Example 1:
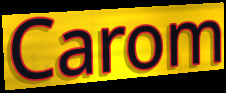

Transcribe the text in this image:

Carom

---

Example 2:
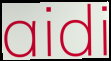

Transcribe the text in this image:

aidi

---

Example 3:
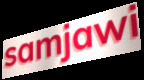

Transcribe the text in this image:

samjawi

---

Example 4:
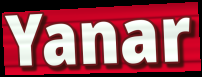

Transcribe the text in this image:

Yanar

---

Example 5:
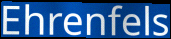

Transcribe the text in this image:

Ehrenfels